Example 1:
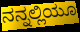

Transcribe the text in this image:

ನನ್ನಲ್ಲಿಯೂ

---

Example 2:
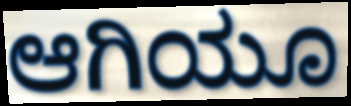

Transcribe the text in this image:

ಆಗಿಯೂ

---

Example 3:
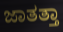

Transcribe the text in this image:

ಜಾತತ್ತಾ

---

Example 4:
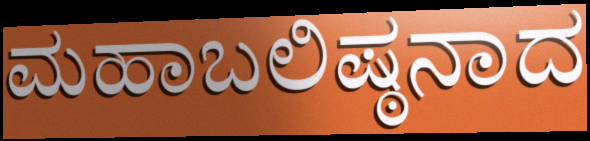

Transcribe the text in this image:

ಮಹಾಬಲಿಷ್ಠನಾದ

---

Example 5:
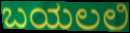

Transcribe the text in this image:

ಬಯಲಲಿ